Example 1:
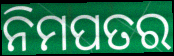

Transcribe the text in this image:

ନିମପତର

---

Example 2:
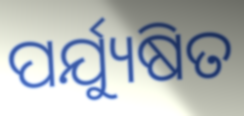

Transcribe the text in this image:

ପର୍ଯ୍ୟୁଷିତ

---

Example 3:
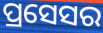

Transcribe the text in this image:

ପ୍ରସେସର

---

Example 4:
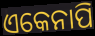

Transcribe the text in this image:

ଏକେନାପି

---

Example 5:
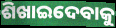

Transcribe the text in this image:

ଶିଖାଇଦେବାକୁ